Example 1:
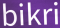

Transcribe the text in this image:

bikri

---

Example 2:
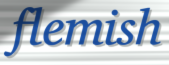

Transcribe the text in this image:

flemish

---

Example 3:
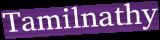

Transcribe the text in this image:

Tamilnathy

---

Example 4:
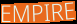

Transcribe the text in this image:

EMPIRE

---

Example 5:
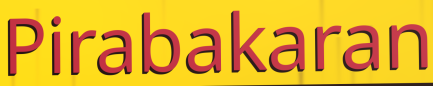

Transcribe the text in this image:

Pirabakaran